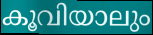
കൂവിയാലും